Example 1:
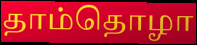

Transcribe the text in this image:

தாம்தொழா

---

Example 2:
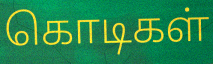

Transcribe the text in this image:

கொடிகள்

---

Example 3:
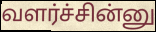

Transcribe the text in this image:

வளர்ச்சின்னு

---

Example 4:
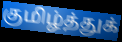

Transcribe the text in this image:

குமிழ்த்துக்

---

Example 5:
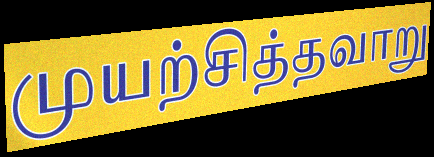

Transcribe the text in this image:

முயற்சித்தவாறு